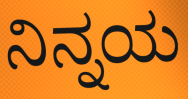
ನಿನ್ನಯ